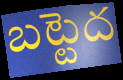
బట్టెద